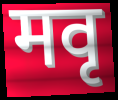
मवृ